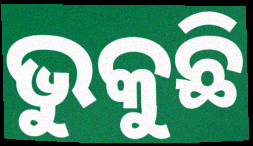
ଭୁକୁଛି